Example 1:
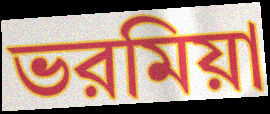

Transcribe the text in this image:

ভরমিয়া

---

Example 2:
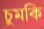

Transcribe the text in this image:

চুমকি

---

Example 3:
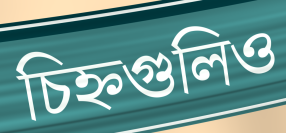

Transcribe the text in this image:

চিহ্নগুলিও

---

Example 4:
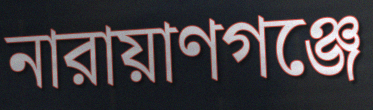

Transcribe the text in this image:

নারায়াণগঞ্জে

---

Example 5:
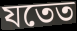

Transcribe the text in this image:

যতেত